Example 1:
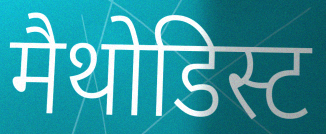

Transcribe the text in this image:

मैथोडिस्ट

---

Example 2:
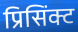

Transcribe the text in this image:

प्रिसिंक्ट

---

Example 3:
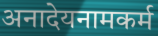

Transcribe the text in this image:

अनादेयनामकर्म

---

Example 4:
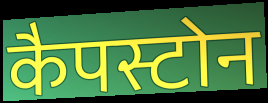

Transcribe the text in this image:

कैपस्टोन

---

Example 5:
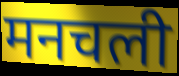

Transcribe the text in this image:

मनचली